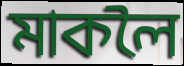
মাকলৈ